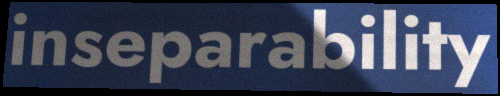
inseparability